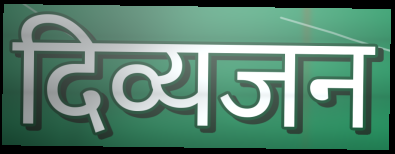
दिव्यजन